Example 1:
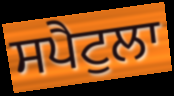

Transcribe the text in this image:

ਸਪੈਟੁਲਾ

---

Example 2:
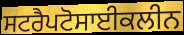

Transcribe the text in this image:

ਸਟਰੈਪਟੋਸਾਈਕਲੀਨ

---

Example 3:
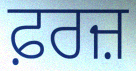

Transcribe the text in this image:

ਫ਼ਰਜ਼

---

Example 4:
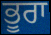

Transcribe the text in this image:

ਭੂਰਾ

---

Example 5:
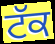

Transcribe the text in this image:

ਟੱਕ